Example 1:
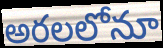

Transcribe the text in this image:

అరలలోనూ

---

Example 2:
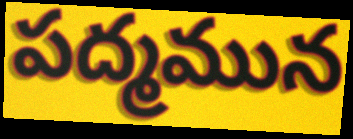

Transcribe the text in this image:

పద్మమున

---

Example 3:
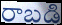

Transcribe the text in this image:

రాబడి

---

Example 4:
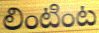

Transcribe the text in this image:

లింటింట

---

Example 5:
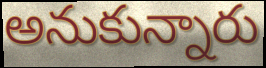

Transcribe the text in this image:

అనుకున్నారు